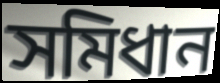
সমিধান